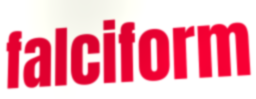
falciform